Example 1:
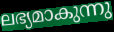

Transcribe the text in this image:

ലഭ്യമാകുന്നു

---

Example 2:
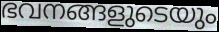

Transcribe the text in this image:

ഭവനങ്ങളുടെയും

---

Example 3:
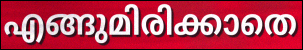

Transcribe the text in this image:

എങ്ങുമിരിക്കാതെ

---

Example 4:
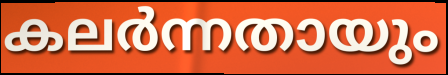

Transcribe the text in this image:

കലർന്നതായും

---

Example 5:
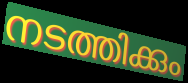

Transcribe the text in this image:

നടത്തിക്കും